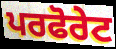
ਪਰਫੋਰੇਟ